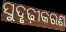
ସୁଦୃଢ଼ୀକରଣ